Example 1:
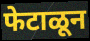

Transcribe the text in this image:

फेटाळून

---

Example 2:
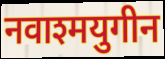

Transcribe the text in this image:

नवाश्मयुगीन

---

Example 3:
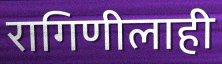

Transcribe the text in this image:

रागिणीलाही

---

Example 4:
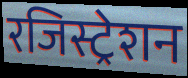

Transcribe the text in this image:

रजिस्ट्रेशन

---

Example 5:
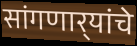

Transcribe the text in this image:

सांगणार्‍यांचे